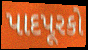
પાદપૂરકો